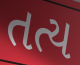
તત્ય